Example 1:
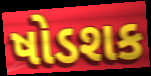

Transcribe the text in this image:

ષોડશક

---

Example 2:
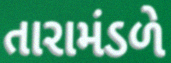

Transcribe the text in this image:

તારામંડળે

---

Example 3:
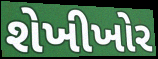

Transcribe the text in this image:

શેખીખોર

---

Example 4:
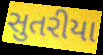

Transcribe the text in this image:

સુતરીયા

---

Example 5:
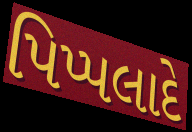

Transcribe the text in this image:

પિપ્પલાદે